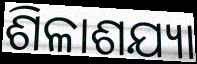
ଶିଳାଶଯ୍ୟା